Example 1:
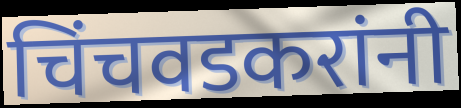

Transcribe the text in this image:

चिंचवडकरांनी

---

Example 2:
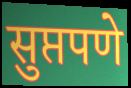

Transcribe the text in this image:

सुप्तपणे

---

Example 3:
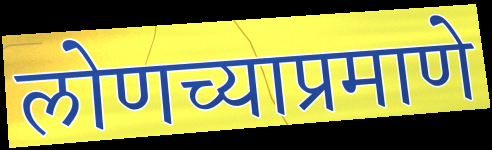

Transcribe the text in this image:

लोणच्याप्रमाणे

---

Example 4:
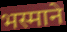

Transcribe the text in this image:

भस्माने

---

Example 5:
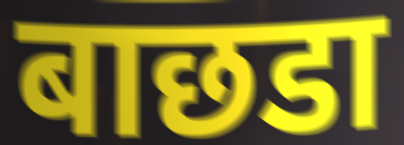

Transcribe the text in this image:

बाछडा